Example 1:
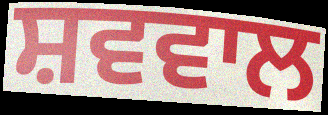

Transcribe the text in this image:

ਸ਼ਵਵਾਲ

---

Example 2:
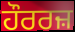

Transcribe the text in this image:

ਹੌਰਰਜ਼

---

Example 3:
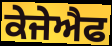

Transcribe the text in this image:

ਕੇਜੇਐਫ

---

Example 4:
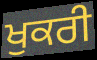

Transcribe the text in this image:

ਖੁਕਰੀ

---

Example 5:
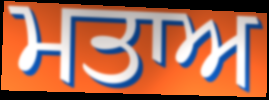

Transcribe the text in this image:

ਮਤਾਅ